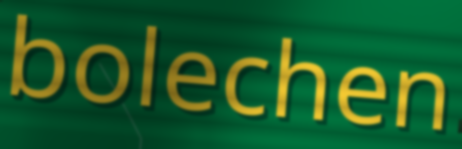
bolechen